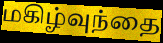
மகிழ்வுந்தை